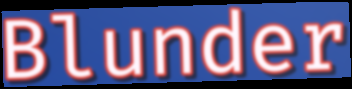
Blunder